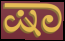
ಷಾ